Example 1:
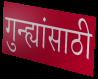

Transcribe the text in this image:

गुन्ह्यांसाठी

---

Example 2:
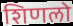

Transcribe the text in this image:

शिणलो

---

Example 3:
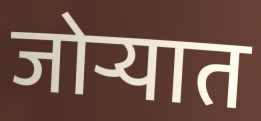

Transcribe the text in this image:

जोऱ्यात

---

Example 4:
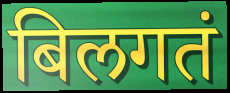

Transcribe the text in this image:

बिलगतं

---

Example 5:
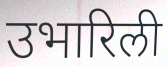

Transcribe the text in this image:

उभारिली